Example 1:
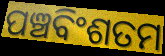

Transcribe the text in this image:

ପଞ୍ଚବିଂଶତମ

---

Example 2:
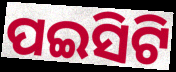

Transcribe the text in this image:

ପଇସିଟି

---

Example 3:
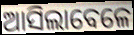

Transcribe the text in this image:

ଆସିଲାବେଳେ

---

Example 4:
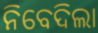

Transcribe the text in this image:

ନିବେଦିଲା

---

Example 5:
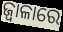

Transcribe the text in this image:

ଜ୍ଵାଳାରେ